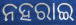
ନହରାଇ